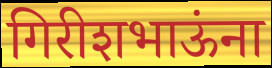
गिरीशभाऊंना